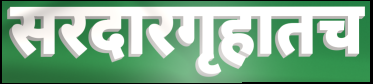
सरदारगृहातच